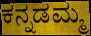
ಕನ್ನಡಮ್ಮ